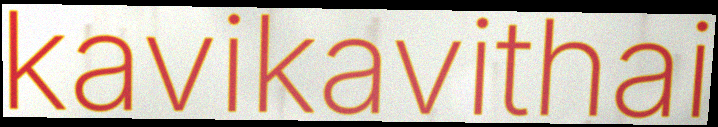
kavikavithai